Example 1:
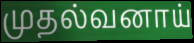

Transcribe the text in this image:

முதல்வனாய்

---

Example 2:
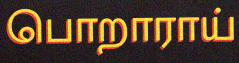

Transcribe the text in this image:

பொறாராய்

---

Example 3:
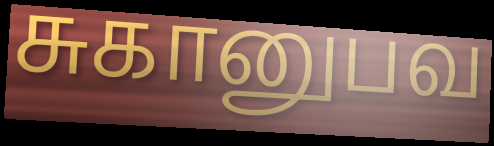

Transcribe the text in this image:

சுகானுபவ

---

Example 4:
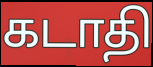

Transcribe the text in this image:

கடாதி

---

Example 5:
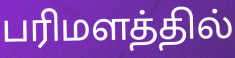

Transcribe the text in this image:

பரிமளத்தில்